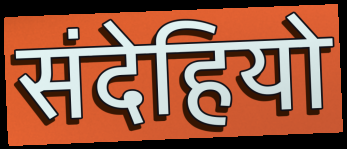
संदेहियो